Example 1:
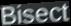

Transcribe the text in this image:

Bisect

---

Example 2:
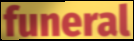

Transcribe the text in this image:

funeral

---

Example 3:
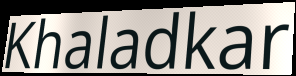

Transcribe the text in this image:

Khaladkar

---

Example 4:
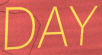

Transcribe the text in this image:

DAY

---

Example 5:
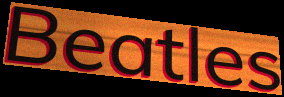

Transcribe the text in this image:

Beatles